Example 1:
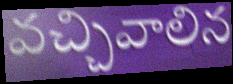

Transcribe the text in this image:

వచ్చివాలిన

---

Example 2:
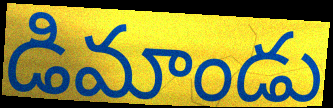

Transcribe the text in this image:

డిమాండు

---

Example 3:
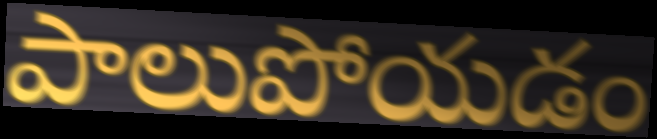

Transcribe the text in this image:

పాలుపోయడం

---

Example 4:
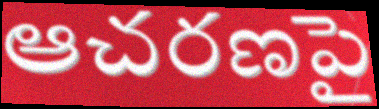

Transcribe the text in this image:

ఆచరణపై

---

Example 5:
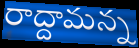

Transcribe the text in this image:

రాద్దామన్న